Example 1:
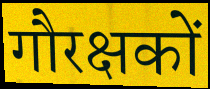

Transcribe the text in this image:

गौरक्षकों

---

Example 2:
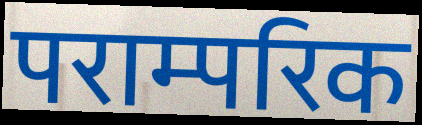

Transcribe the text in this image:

पराम्परिक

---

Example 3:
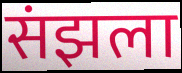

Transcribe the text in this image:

संझला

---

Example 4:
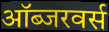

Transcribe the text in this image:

ऑब्जरवर्स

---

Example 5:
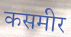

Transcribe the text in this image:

कसमीर